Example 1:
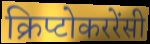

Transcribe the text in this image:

क्रिप्टोकररेंसी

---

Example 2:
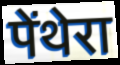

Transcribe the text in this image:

पेंथेरा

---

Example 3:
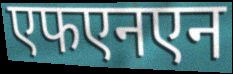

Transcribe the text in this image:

एफएनएन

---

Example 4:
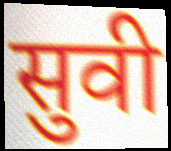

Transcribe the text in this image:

सुवी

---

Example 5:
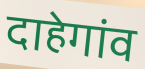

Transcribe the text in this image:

दाहेगांव